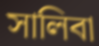
সালিবা